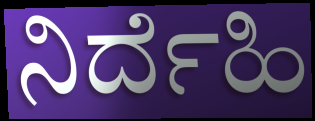
ನಿರ್ದೆಹಿ